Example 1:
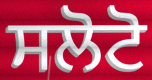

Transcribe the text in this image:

ਸਲੋਟੋ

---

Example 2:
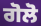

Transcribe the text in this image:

ਗੋਲੋ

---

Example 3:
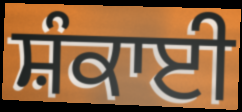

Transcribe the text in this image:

ਸ਼ੰਕਾਈ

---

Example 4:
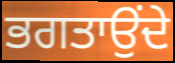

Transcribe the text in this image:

ਭਗਤਾਉਂਦੇ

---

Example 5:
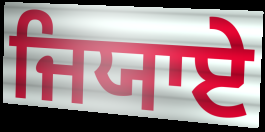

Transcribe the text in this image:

ਜਿਯਾਏ